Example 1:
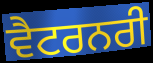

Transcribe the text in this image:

ਵੈਟਰਨਰੀ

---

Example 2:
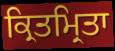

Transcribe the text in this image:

ਕ੍ਰਿਤਮ੍ਰਿਤਾ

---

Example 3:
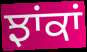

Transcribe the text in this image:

ਝਾਂਕਾਂ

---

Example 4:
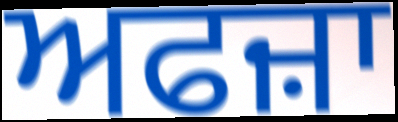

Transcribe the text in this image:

ਅਫਜ਼ਾ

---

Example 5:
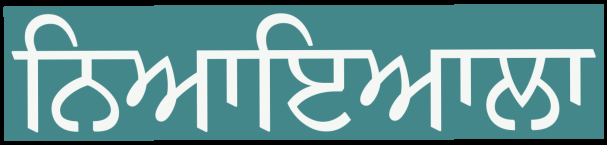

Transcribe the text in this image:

ਨਿਆਇਆਲਾ